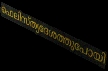
ഫെലിസ്ത്യദേശത്തുപോയി